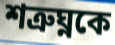
শত্রুঘ্নকে